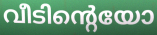
വീടിന്റെയോ